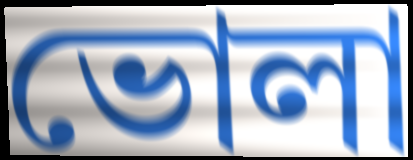
ভোলা